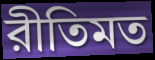
রীতিমত